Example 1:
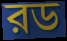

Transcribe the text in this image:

রড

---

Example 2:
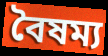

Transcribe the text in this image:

বৈষম্য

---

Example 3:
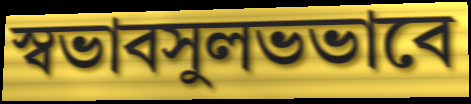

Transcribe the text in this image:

স্বভাবসুলভভাবে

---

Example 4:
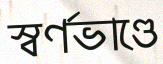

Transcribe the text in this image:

স্বর্ণভাণ্ডে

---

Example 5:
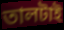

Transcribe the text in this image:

তালটাই